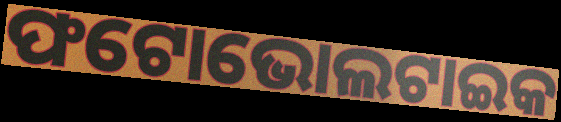
ଫଟୋଭୋଲଟାଇକ